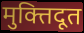
मुक्तिदूत